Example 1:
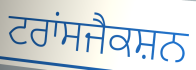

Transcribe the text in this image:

ਟਰਾਂਸਜੈਕਸ਼ਨ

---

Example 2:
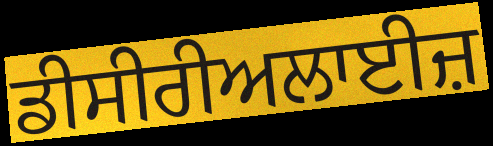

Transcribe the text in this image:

ਡੀਸੀਰੀਅਲਾਈਜ਼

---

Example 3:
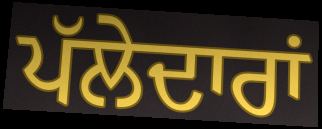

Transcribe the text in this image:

ਪੱਲੇਦਾਰਾਂ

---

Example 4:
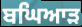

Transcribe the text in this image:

ਬਘਿਆੜ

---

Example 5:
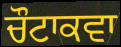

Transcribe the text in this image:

ਚੌਟਾਕਵਾ